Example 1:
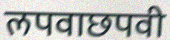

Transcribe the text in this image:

लपवाछपवी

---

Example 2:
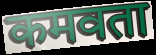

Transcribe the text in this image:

कमवता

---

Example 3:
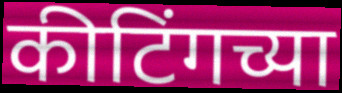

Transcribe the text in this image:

कीटिंगच्या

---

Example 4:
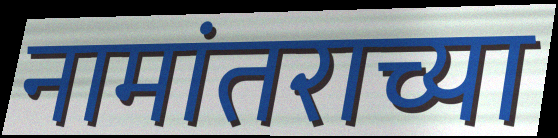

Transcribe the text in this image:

नामांतराच्या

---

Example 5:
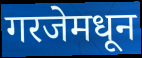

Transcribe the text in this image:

गरजेमधून